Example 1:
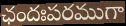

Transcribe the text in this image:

ఛందఃపరముగా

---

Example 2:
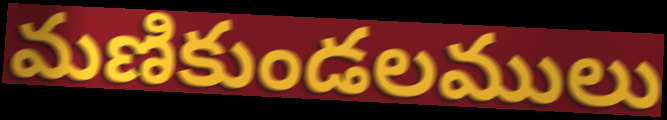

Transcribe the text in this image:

మణికుండలములు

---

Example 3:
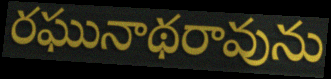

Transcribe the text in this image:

రఘునాథరావును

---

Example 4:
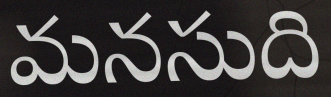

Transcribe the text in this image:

మనసుది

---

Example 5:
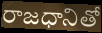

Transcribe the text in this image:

రాజధానితో